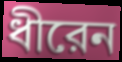
ধীরেন